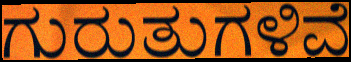
ಗುರುತುಗಳಿವೆ